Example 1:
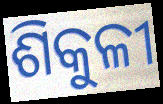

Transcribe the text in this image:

ଶିକୁଳୀ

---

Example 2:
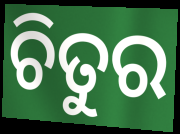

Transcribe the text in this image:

ଚିତୁର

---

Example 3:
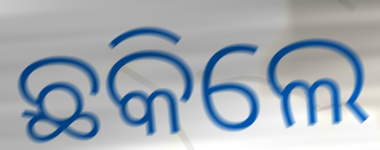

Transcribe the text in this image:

ଛକିଲେ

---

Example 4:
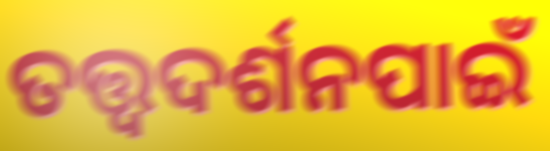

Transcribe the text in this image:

ତତ୍ତ୍ଵଦର୍ଶନପାଇଁ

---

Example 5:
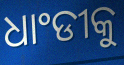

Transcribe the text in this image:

ଧାଂଡୀକୁ